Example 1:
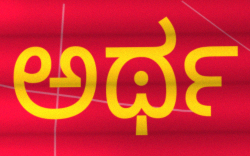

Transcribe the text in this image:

ಅರ್ಥ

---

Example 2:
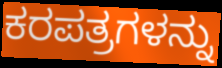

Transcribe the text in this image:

ಕರಪತ್ರಗಳನ್ನು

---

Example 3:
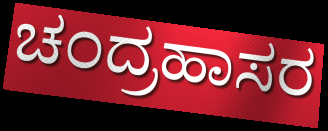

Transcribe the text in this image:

ಚಂದ್ರಹಾಸರ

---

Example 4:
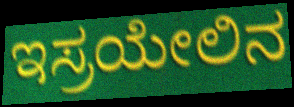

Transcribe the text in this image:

ಇಸ್ರಯೇಲಿನ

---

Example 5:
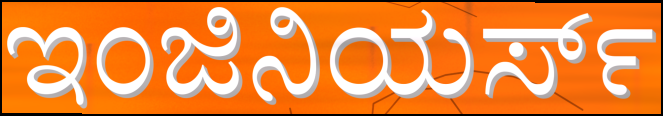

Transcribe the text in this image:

ಇಂಜಿನಿಯರ್ಸ್